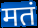
मतं